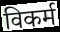
विकर्म